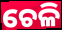
ଚେଳି